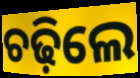
ଚଢ଼ିଲେ